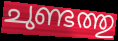
ചുണ്ടത്തു